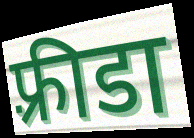
फ़्रीडा